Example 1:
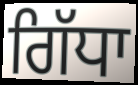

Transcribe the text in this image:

ਗਿੱਧਾ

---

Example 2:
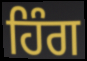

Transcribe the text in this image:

ਹਿੰਗ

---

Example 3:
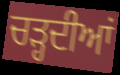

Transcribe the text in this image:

ਚੜ੍ਹਦੀਆਂ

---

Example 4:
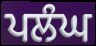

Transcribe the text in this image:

ਪਲੰਘ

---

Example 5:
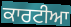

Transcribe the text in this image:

ਕਾਰਟੀਆ